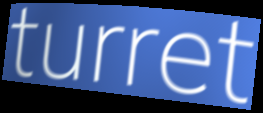
turret